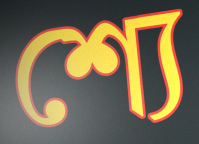
শ্যে